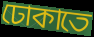
ঢোকাতে